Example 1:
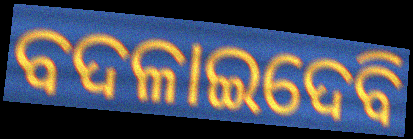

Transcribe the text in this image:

ବଦଳାଇଦେବି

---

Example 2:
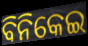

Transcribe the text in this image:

ବିନିକେଇ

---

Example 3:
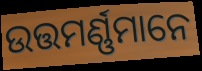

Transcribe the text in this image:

ଉତ୍ତମର୍ଣ୍ଣମାନେ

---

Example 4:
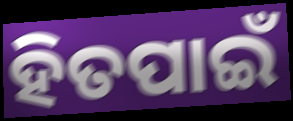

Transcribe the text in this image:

ହିତପାଇଁ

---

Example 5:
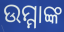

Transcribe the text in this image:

ଉମ୍ମାଙ୍କ